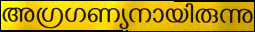
അഗ്രഗണ്യനായിരുന്നു